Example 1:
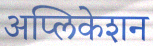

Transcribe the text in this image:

अप्लिकेशन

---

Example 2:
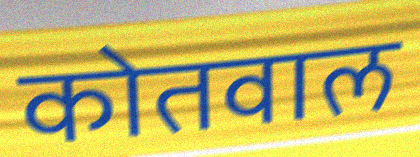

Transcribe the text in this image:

कोतवाल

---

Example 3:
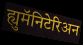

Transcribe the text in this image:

ह्युमॅनिटेरिअन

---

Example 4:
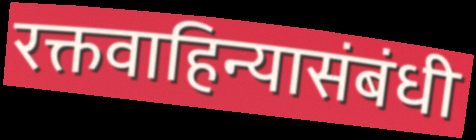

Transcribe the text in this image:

रक्तवाहिन्यासंबंधी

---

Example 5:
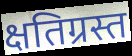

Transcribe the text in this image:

क्षतिग्रस्त